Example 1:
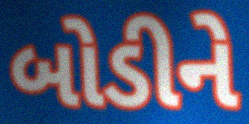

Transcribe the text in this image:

બોડીને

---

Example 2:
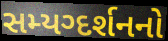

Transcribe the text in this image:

સમ્યગ્દર્શનનો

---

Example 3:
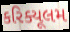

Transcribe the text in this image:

કરિક્યૂલમ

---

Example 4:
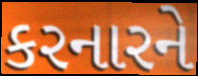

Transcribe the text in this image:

કરનારને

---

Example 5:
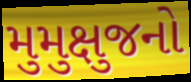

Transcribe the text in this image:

મુમુક્ષુજનો